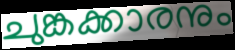
ചുങ്കക്കാരനും